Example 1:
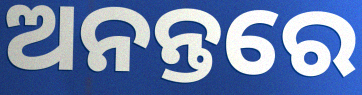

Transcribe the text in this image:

ଅନନ୍ତରେ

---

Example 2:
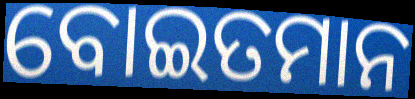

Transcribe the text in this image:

ବୋଇତମାନ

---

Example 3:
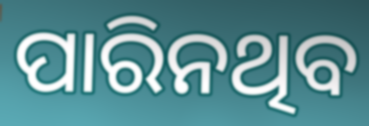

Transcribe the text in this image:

ପାରିନଥିବ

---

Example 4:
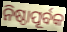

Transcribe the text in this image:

ନିଷ୍ଠାପୂର୍ବକ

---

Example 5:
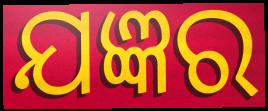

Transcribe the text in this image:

ଯଜ୍ଞର